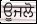
ਊਜਲੋ